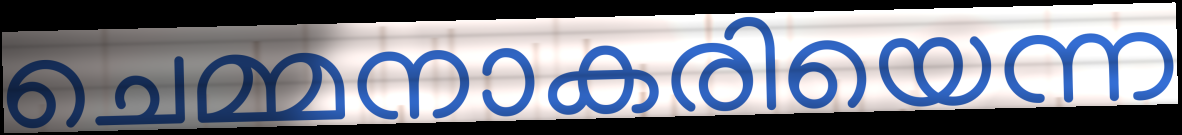
ചെമ്മനാകരിയെന്ന